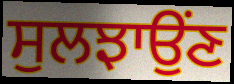
ਸੁਲਝਾਉਂਣ